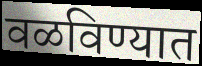
वळविण्यात